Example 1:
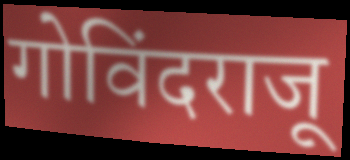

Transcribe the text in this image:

गोविंदराजू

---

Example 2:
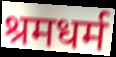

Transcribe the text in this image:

श्रमधर्म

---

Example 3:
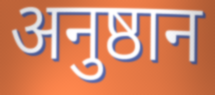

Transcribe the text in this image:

अनुष्ठान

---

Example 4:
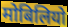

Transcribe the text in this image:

मोबिलियो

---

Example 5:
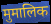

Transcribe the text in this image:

मुमालिक